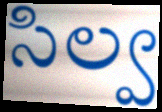
సిల్వ